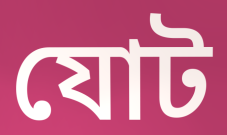
যোট